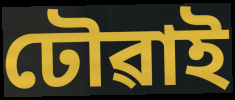
ঢৌৱাই